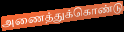
அணைத்துக்கொண்டு